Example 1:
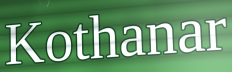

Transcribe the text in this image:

Kothanar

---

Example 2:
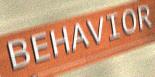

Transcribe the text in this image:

BEHAVIOR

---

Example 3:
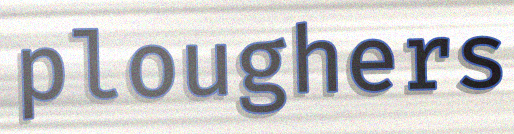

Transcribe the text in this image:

ploughers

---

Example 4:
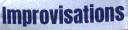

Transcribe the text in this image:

Improvisations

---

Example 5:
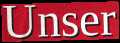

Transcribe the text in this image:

Unser